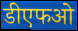
डीएफओ